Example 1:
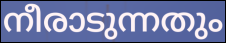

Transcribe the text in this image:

നീരാടുന്നതും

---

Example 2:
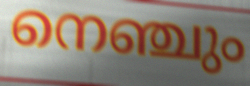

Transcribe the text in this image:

നെഞ്ചും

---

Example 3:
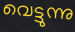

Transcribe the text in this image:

വെട്ടുന്നു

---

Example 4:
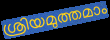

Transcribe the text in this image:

ശ്രിയമുത്തമാം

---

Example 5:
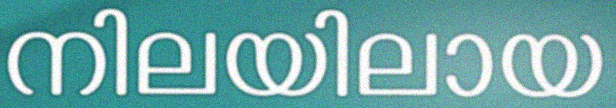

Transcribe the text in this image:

നിലയിലായ